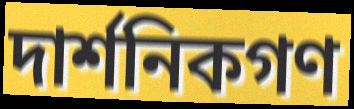
দার্শনিকগণ